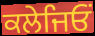
ਕਲੇਜਿਓਂ